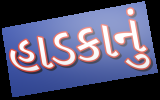
હાડકાનું